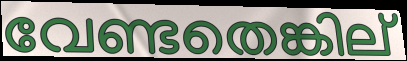
വേണ്ടതെങ്കില്